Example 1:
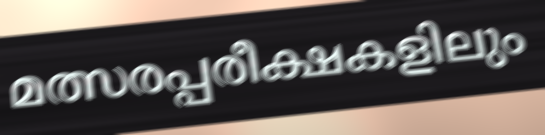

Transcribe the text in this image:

മത്സരപ്പരീക്ഷകളിലും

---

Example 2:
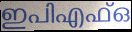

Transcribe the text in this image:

ഇപിഎഫ്ഒ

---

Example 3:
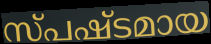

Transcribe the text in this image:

സ്പഷ്ടമായ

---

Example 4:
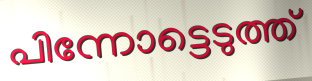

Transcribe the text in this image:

പിന്നോട്ടെടുത്ത്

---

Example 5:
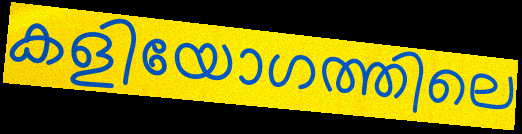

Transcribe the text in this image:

കളിയോഗത്തിലെ